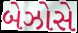
બેઝોસે